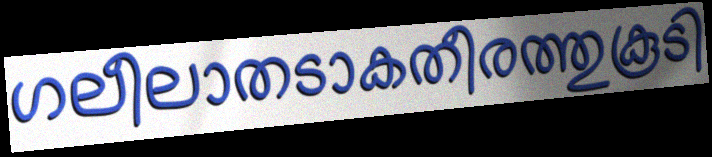
ഗലീലാതടാകതീരത്തുകൂടി